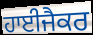
ਹਾਈਜੈਕਰ